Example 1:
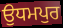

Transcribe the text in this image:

ਉਧਮਪੁਰ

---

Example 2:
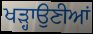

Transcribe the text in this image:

ਖੜ੍ਹਾਉਣੀਆਂ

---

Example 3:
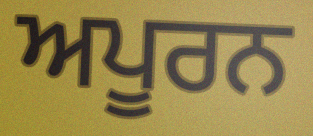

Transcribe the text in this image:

ਅਪੂਰਨ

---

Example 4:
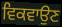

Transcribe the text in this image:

ਵਿਕਵਾਉਣ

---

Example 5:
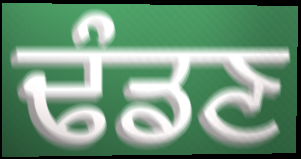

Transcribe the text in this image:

ਢੰਡਣ